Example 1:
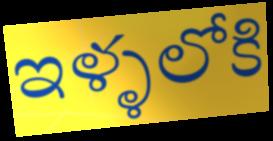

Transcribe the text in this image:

ఇళ్ళలోకి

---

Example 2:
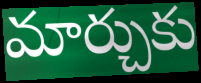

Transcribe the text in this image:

మార్చుకు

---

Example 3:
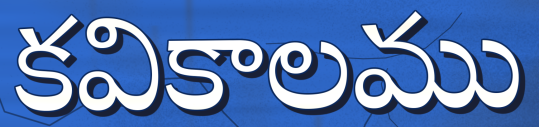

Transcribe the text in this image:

కవికాలము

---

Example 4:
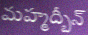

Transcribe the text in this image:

మహ్మద్బీన్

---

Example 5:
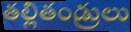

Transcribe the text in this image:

తల్లితండ్రులు